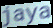
jaya